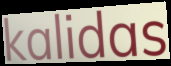
kalidas